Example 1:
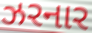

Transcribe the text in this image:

ઝરનાર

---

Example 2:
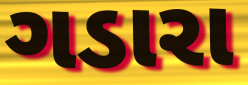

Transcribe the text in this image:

ગડારા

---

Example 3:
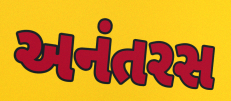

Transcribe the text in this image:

અનંતરસ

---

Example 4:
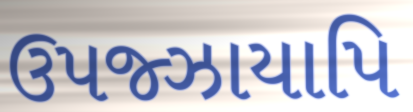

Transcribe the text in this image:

ઉપજ્ઝાયાપિ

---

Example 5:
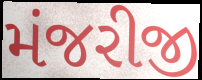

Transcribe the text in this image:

મંજરીજી